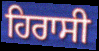
ਹਿਰਾਸੀ